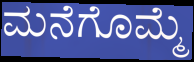
ಮನೆಗೊಮ್ಮೆ